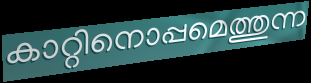
കാറ്റിനൊപ്പമെത്തുന്ന